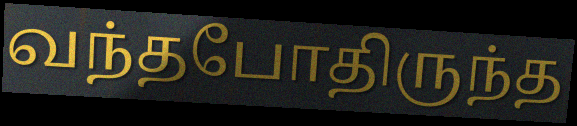
வந்தபோதிருந்த